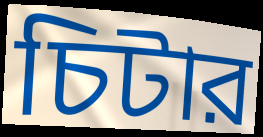
চিটার